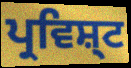
ਪ੍ਰਵਿਸ਼੍ਟ